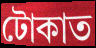
টোকাত